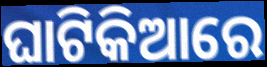
ଘାଟିକିଆରେ